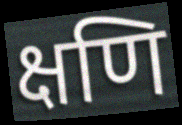
क्षणि